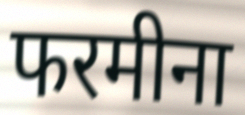
फरमीना